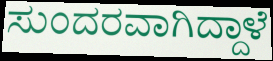
ಸುಂದರವಾಗಿದ್ದಾಳೆ